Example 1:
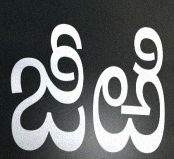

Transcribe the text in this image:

జీఱి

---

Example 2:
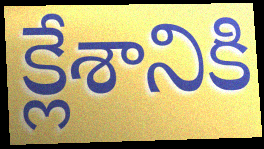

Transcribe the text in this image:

క్లేశానికి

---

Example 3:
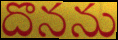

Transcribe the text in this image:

దొనను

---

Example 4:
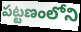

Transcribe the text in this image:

పట్టణంలోని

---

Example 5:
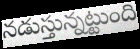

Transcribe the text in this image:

నడుస్తున్నట్టుంది